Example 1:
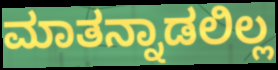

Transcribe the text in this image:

ಮಾತನ್ನಾಡಲಿಲ್ಲ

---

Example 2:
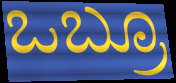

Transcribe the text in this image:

ಒಬ್ರೂ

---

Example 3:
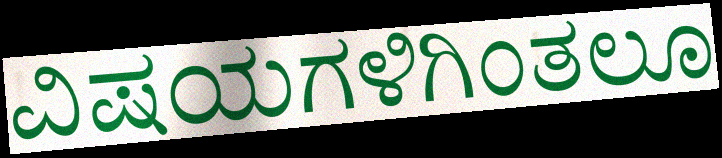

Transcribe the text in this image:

ವಿಷಯಗಳಿಗಿಂತಲೂ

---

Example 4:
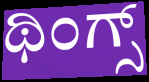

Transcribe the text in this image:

ಥಿಂಗ್ಸ್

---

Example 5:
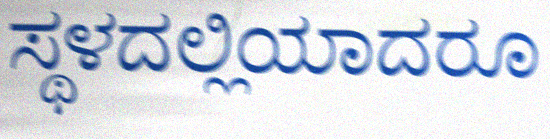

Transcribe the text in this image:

ಸ್ಥಳದಲ್ಲಿಯಾದರೂ